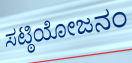
ಸಟ್ಠಿಯೋಜನಂ